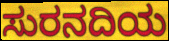
ಸುರನದಿಯ